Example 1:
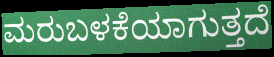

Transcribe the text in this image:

ಮರುಬಳಕೆಯಾಗುತ್ತದೆ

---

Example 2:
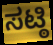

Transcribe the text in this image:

ಸಟ್ಠಿ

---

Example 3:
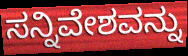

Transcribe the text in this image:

ಸನ್ನಿವೇಶವನ್ನು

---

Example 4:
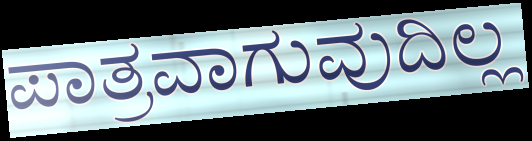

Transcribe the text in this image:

ಪಾತ್ರವಾಗುವುದಿಲ್ಲ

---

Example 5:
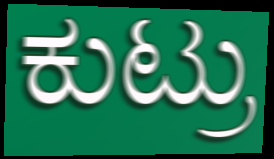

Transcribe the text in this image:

ಕುಟ್ರು